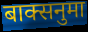
बाक्सनुमा